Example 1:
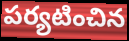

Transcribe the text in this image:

పర్యటించిన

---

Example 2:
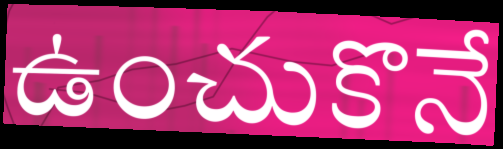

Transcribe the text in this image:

ఉంచుకొనే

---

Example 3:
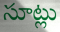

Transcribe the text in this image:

సూట్లు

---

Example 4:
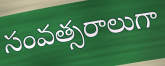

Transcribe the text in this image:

సంవత్సరాలుగా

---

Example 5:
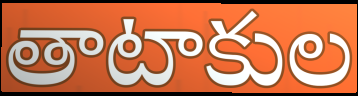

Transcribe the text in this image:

తాటాకుల